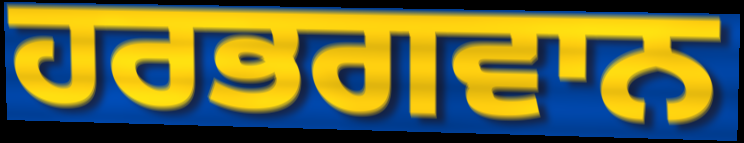
ਹਰਭਗਵਾਨ